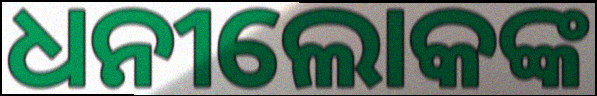
ଧନୀଲୋକଙ୍କ